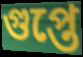
গুপ্তে